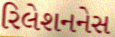
રિલેશનનેસ